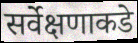
सर्वेक्षणाकडे